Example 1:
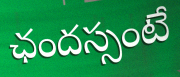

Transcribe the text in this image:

ఛందస్సంటే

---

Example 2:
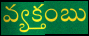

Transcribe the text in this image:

వ్యక్తంబు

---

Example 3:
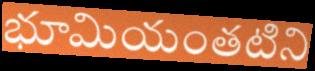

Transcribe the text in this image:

భూమియంతటిని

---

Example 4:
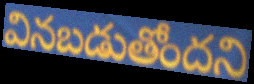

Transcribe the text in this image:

వినబడుతోందని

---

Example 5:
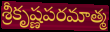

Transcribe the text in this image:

శ్రీకృష్ణపరమాత్మ